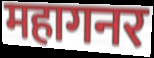
महागनर